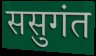
ससुगंत